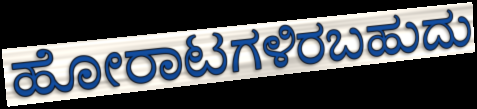
ಹೋರಾಟಗಳಿರಬಹುದು